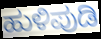
ಹುಳಿಪುಡಿ